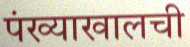
पंख्याखालची